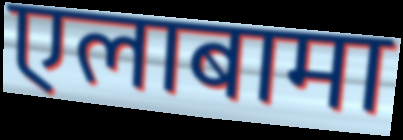
एलाबामा